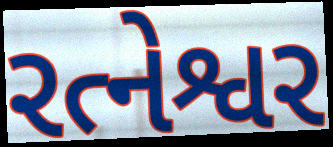
રત્નેશ્વર